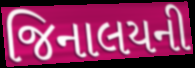
જિનાલયની